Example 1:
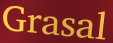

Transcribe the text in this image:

Grasal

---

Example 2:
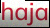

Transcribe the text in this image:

haja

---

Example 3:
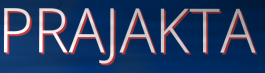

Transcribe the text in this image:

PRAJAKTA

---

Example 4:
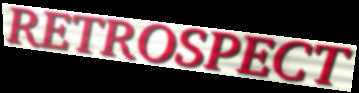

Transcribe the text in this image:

RETROSPECT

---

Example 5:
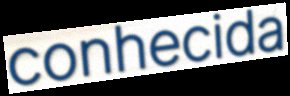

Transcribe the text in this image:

conhecida